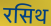
रसिथ